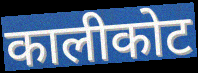
कालीकोट